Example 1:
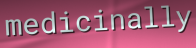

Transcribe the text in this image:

medicinally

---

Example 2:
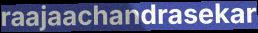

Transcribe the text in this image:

raajaachandrasekar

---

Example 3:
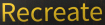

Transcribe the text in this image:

Recreate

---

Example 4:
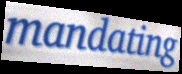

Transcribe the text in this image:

mandating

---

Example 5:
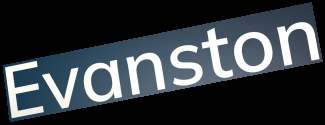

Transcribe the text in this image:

Evanston